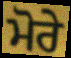
ਮੋਰੇ